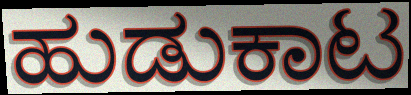
ಹುಡುಕಾಟ